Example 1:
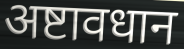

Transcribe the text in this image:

अष्टावधान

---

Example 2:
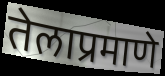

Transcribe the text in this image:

तेलाप्रमाणे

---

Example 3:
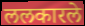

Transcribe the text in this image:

ललकारले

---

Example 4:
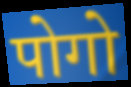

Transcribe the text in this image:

पोगो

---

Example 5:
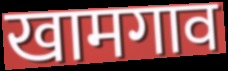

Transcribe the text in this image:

खामगाव